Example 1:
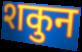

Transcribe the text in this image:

शकुन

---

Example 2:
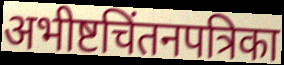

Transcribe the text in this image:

अभीष्टचिंतनपत्रिका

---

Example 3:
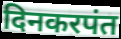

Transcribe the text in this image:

दिनकरपंत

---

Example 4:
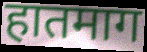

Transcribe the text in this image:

हातमाग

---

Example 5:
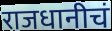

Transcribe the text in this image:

राजधानीचं